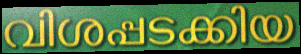
വിശപ്പടക്കിയ